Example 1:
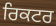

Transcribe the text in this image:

ਰਿਕਟਰ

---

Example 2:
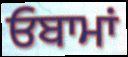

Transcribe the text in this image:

ਓਬਾਮਾਂ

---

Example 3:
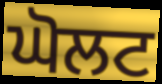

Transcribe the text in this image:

ਘੋਲਟ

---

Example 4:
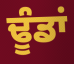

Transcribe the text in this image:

ਢੂੰਡਾਂ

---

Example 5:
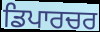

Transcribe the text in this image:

ਡਿਪਾਰਚਰ